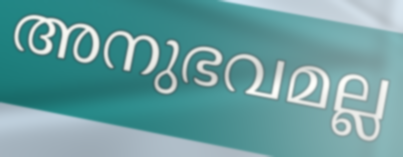
അനുഭവമല്ല